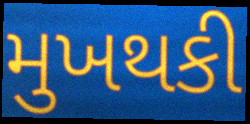
મુખથકી